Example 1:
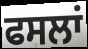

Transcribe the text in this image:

ਫਸਲਾਂ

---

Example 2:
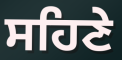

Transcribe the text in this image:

ਸਹਿਣੇ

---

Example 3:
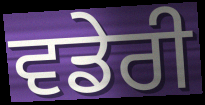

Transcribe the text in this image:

ਵਡੇਰੀ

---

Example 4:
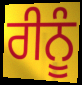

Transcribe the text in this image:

ਰੀਨੂੰ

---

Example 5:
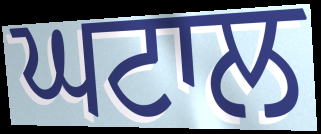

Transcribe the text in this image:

ਘਟਾਲ